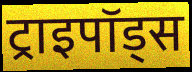
ट्राइपॉड्स